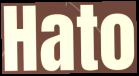
Hato